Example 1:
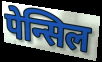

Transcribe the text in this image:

पेन्सिल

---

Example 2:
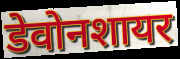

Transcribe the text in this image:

डेवोनशायर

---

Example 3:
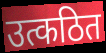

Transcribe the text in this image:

उत्कठित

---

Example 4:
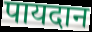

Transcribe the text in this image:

पायदान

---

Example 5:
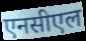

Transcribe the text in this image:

एनसीएल